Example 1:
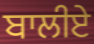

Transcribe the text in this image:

ਬਾਲੀਏ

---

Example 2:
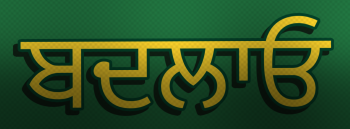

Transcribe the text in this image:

ਬਦਲਾਓ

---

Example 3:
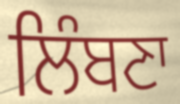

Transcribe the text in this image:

ਲਿੰਬਣਾ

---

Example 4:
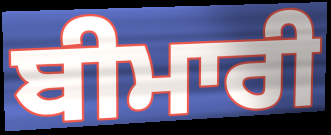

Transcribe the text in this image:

ਬੀਮਾਰੀ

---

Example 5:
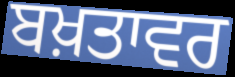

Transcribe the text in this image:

ਬਖ਼ਤਾਵਰ